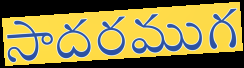
సాదరముగ